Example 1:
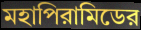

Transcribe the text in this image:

মহাপিরামিডের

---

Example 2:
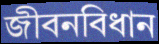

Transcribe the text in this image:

জীবনবিধান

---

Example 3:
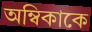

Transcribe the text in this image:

অম্বিকাকে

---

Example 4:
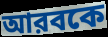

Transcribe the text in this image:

আরবকে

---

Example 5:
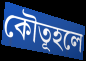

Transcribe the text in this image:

কৌতূহলে